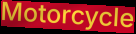
Motorcycle